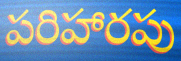
పరిహారపు